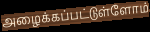
அழைக்கப்பட்டுள்ளோம்